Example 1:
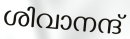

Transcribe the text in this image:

ശിവാനന്ദ്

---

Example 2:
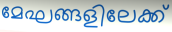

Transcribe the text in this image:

മേഘങ്ങളിലേക്ക്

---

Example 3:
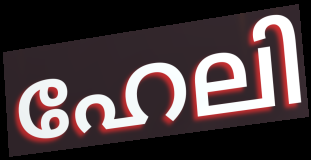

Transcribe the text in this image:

ഹേലി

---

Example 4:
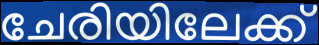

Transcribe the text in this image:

ചേരിയിലേക്ക്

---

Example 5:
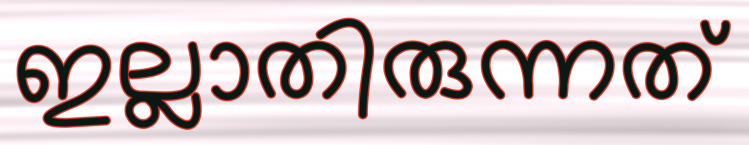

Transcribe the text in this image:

ഇല്ലാതിരുന്നത്